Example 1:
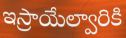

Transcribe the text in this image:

ఇస్రాయేల్వారికి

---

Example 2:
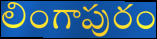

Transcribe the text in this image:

లింగాపురం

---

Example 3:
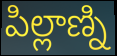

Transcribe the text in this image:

పిల్లాణ్ని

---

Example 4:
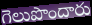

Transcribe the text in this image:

గెలుపొందారు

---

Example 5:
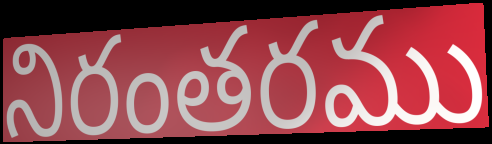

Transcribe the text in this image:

నిరంతరము